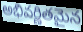
అభివర్ణితమైన